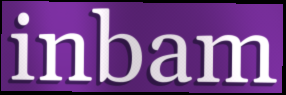
inbam